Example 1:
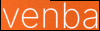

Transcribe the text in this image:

venba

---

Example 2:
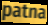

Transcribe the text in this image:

patna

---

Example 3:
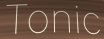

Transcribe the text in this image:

Tonic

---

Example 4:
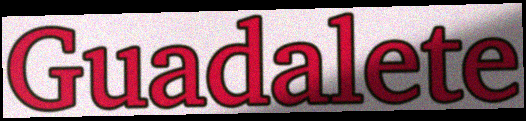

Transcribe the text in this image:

Guadalete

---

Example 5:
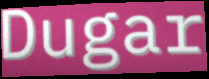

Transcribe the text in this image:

Dugar